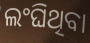
ଲଂଘିଥିବା